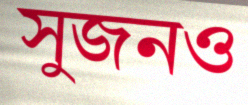
সুজনও